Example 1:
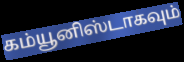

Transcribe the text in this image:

கம்யூனிஸ்டாகவும்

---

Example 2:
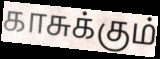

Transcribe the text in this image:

காசுக்கும்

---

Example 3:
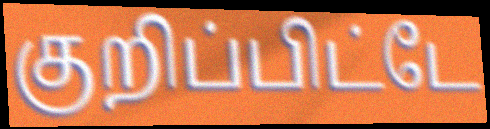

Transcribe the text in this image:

குறிப்பிட்டே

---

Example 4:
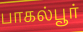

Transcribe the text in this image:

பாகல்பூர்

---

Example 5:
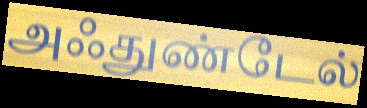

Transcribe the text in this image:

அஃதுண்டேல்